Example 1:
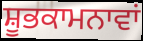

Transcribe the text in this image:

ਸ਼ੂਭਕਾਮਨਾਵਾਂ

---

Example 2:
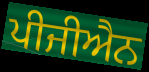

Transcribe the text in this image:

ਪੀਜੀਐਨ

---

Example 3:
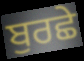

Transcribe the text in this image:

ਬੁਰਛੇ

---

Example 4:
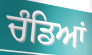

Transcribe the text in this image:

ਚੰਡਿਆਂ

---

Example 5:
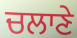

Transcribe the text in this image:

ਚਲਾਣੇ